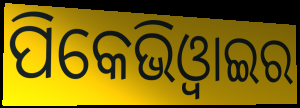
ପିକେଭିଓ୍ବାଇର